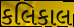
કલિકાલ